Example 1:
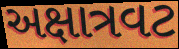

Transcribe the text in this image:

અક્ષાત્રવટ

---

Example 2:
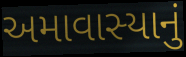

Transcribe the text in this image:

અમાવાસ્યાનું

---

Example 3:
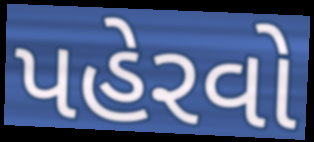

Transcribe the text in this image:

પહેરવો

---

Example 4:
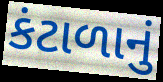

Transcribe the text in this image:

કંટાળાનું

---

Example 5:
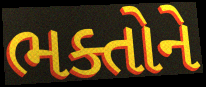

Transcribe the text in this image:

ભક્તોને